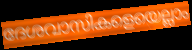
ദേശവാസികളെയെല്ലാം